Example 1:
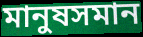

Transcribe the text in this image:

মানুষসমান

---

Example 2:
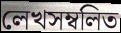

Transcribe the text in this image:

লেখসম্বলিত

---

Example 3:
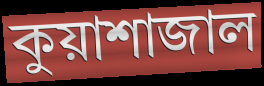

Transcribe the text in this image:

কুয়াশাজাল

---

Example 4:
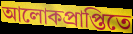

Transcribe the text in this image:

আলোকপ্রাপ্তিতে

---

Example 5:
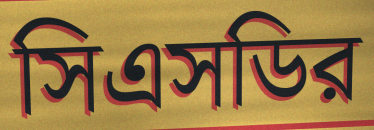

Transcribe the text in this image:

সিএসডির